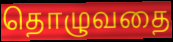
தொழுவதை